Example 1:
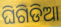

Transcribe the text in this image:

ଘିଗିଡିଆ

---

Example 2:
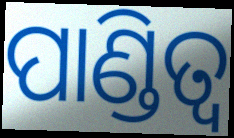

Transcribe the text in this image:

ପାଣ୍ଡିତ୍ୱ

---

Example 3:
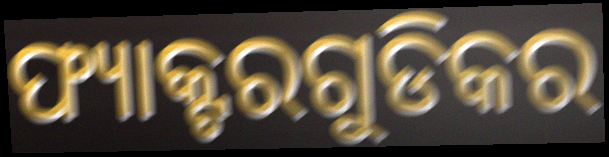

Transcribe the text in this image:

ଫ୍ୟାକ୍ଟରଗୁଡିକର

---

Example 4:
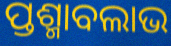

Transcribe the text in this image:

ପ୍ତଶ୍ମାବଲାଭ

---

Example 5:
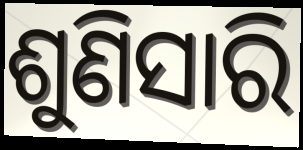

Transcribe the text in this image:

ଶୁଣିସାରି